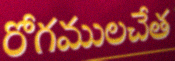
రోగములచేత